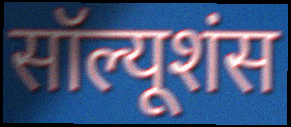
सॉल्यूशंस